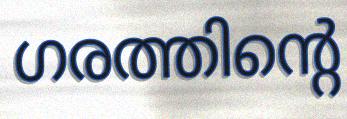
ഗരത്തിന്റെ